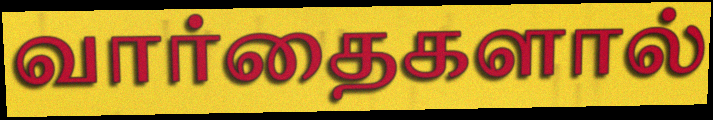
வார்தைகளால்